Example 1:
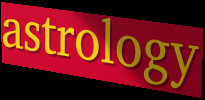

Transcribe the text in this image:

astrology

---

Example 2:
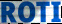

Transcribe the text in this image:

ROTI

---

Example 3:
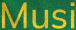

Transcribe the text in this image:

Musi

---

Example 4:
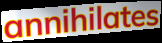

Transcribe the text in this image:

annihilates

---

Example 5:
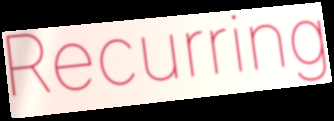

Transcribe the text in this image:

Recurring